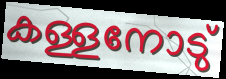
കള്ളനോടു്